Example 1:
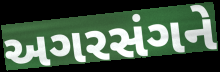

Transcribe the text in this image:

અગરસંગને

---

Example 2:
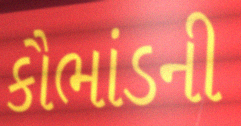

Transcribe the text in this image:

કૌભાંડની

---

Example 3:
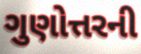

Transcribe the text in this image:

ગુણોત્તરની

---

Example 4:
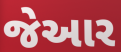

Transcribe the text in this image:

જેઆર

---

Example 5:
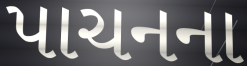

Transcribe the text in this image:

પાચનના